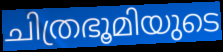
ചിത്രഭൂമിയുടെ